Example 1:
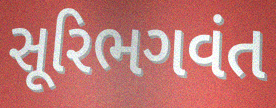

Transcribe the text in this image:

સૂરિભગવંત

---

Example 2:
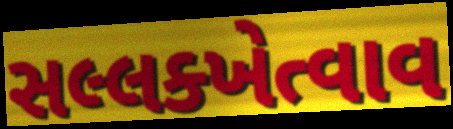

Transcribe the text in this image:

સલ્લક્ખેત્વાવ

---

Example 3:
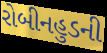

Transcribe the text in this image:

રોબીનહુડની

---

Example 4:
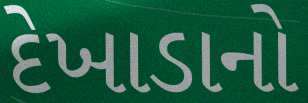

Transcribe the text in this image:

દેખાડાનો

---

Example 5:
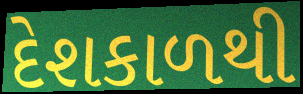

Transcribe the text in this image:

દેશકાળથી